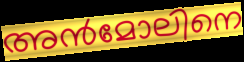
അൻമോലിനെ